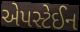
એપસ્ટેઈન